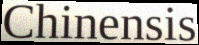
Chinensis